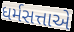
ધર્મસત્તાએ